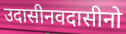
उदासीनवदासीनो